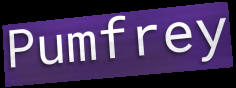
Pumfrey